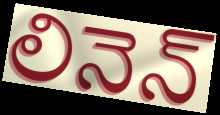
లినెన్